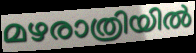
മഴരാത്രിയിൽ